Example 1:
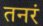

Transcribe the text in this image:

तनरं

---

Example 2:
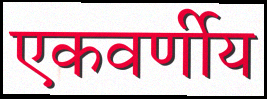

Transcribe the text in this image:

एकवर्णीय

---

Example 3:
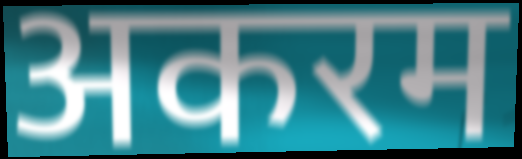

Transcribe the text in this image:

अकरम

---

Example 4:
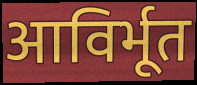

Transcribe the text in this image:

आविर्भूत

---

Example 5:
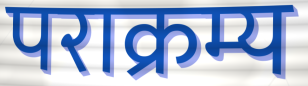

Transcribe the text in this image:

पराक्रम्य